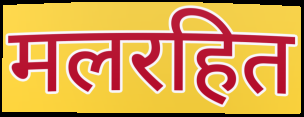
मलरहित